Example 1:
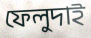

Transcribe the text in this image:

ফেলুদাই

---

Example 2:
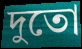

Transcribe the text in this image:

দুতো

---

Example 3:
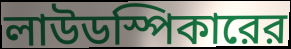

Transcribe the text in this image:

লাউডস্পিকারের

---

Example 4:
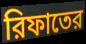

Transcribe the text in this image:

রিফাতের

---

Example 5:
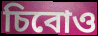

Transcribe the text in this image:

চিবোও